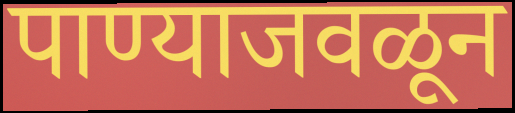
पाण्याजवळून